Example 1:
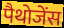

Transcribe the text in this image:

पैथोजेंस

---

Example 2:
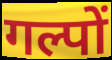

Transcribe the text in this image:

गल्पों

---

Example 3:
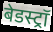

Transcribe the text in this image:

बेडस्ट्रॉ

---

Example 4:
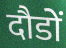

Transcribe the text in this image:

दौडों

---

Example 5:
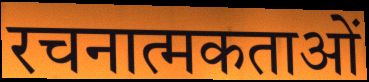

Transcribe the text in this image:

रचनात्मकताओं